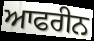
ਆਫਰੀਨ